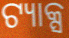
ଟ୍ୟାକ୍ସ